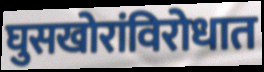
घुसखोरांविरोधात